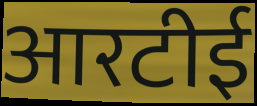
आरटीई